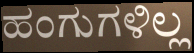
ಹಂಗುಗಳಿಲ್ಲ